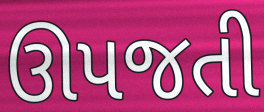
ઊપજતી